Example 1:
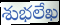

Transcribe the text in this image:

శుభలేఖ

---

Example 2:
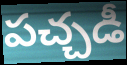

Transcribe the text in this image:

పచ్చడీ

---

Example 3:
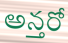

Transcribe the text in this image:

అన్తరో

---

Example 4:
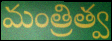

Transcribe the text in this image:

మంత్రిత్వ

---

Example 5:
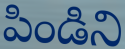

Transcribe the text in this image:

పిండిని